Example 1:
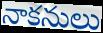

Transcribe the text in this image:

నాకనులు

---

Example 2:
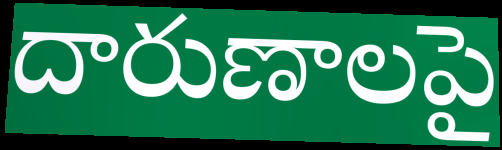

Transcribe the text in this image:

దారుణాలపై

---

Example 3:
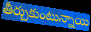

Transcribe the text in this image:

తీర్చుకుంటున్నాయి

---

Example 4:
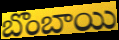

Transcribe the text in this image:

బొంబాయి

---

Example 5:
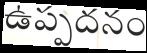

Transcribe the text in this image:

ఉప్పదనం